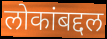
लोकांबद्दल